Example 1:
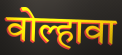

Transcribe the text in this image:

वोल्हावा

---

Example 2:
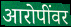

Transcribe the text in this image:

आरोपींवर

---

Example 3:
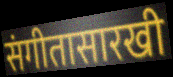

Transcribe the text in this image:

संगीतासारखी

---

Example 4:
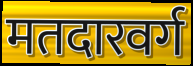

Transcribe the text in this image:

मतदारवर्ग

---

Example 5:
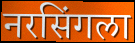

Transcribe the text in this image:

नरसिंगला